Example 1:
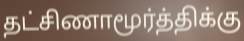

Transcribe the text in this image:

தட்சிணாமூர்த்திக்கு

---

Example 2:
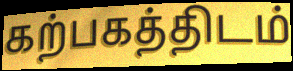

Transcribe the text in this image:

கற்பகத்திடம்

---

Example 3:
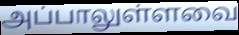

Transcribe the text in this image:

அப்பாலுள்ளவை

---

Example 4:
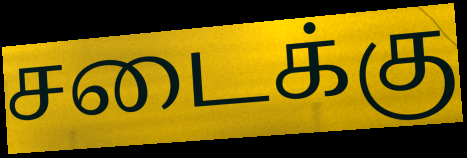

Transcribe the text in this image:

சடைக்கு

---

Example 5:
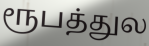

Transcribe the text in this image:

ரூபத்துல